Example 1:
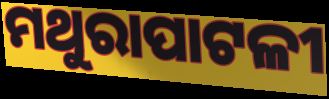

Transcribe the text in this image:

ମଥୁରାପାଟଳୀ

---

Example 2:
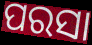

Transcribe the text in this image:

ପରସା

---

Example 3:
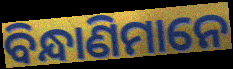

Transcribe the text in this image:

ବିନ୍ଧାଣିମାନେ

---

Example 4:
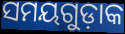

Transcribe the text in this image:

ସମୟଗୁଡ଼ାକ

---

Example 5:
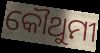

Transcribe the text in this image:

କୌଥୁମୀ